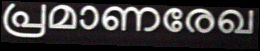
പ്രമാണരേഖ